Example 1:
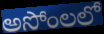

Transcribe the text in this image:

అసోంలలో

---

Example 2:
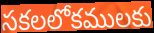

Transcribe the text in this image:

సకలలోకములకు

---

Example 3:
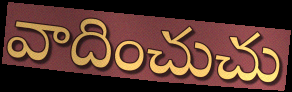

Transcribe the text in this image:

వాదించుచు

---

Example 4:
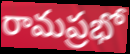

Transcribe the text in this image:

రామప్రభో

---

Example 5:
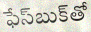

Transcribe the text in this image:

ఫేస్‌బుక్‌తో